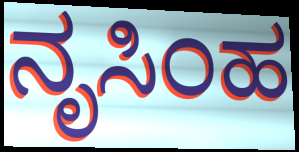
ನೃಸಿಂಹ